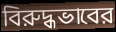
বিরুদ্ধভাবের